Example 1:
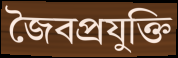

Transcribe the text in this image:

জৈবপ্রযুক্তি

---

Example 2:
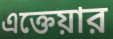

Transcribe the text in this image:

এক্তেয়ার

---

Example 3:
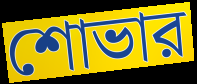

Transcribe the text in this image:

শোভার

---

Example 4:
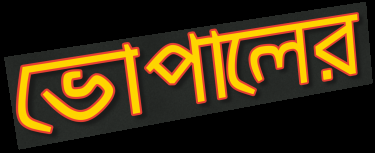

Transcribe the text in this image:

ভোপালের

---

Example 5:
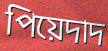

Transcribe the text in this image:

পিয়েদাদ